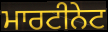
ਮਾਰਟੀਨੇਟ